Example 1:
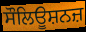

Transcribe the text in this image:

ਸੌਲਿਊਸ਼ਨਜ਼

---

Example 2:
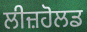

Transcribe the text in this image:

ਲੀਜ਼ਹੋਲਡ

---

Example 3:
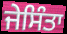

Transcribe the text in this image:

ਜੇਸਿੰਤਾ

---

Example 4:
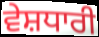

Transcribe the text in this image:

ਵੇਸ਼ਧਾਰੀ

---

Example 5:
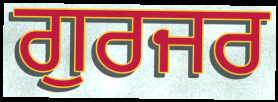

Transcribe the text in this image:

ਗੁਰਜਰ